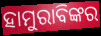
ହାମୁରାବିଙ୍କର